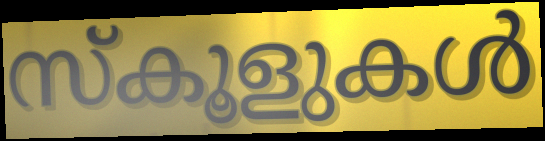
സ്കൂളുകൾ